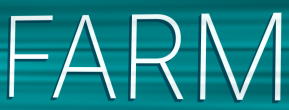
FARM